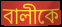
বালীকে